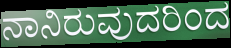
ನಾನಿರುವುದರಿಂದ